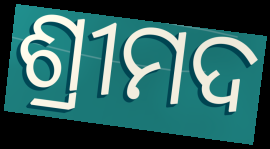
ଶ୍ରୀମଦ